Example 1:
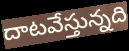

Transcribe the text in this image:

దాటవేస్తున్నది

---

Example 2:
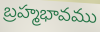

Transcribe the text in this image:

బ్రహ్మభావము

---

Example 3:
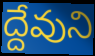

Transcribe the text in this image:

ద్దేవుని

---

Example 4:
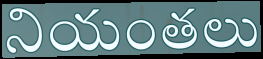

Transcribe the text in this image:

నియంతలు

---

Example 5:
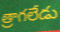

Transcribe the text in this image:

త్రాగలేడు